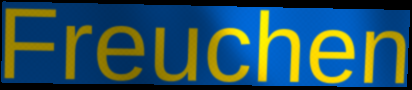
Freuchen